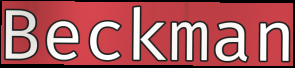
Beckman